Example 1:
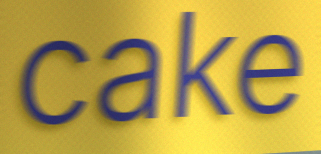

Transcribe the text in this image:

cake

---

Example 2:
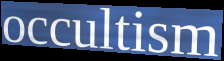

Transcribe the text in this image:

occultism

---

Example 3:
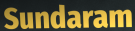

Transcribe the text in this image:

Sundaram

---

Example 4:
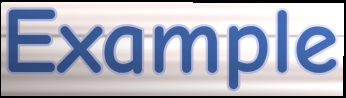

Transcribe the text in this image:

Example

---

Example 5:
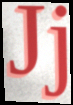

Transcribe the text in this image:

Jj